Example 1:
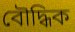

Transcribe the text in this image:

বৌদ্ধিক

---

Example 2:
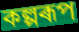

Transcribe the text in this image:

কল্পৰূপ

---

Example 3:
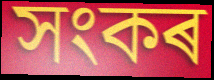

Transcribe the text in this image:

সংকৰ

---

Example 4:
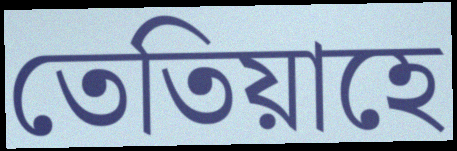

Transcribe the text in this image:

তেতিয়াহে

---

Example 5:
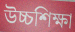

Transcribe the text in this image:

উচ্চশিক্ষা